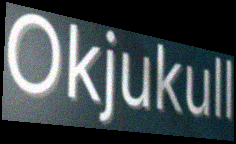
Okjukull